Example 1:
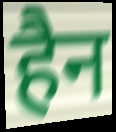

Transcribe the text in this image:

हैन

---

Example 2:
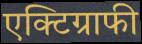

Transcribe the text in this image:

एक्टिग्राफी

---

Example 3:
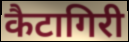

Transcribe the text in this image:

कैटागिरी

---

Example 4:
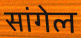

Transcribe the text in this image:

सांगेल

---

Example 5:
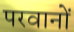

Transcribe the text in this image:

परवानों